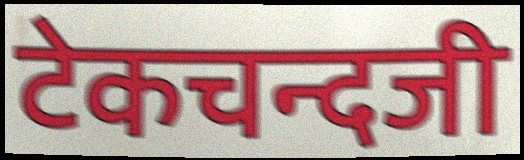
टेकचन्दजी